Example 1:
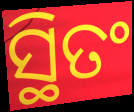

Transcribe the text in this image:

ସ୍ଥିତଂ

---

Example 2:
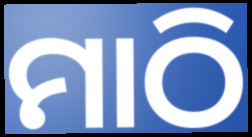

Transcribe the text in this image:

ମାଠି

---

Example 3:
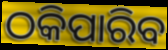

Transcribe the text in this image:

ଠକିପାରିବ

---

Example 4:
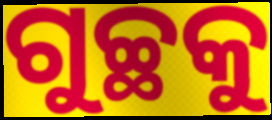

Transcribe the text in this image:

ଗୁଚ୍ଛକୁ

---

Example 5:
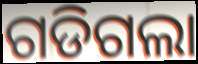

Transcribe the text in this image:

ଗଡିଗଲା